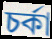
চর্কা